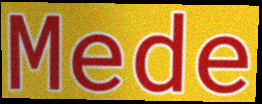
Mede